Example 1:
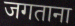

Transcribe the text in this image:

जगताना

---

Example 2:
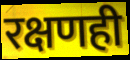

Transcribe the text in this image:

रक्षणही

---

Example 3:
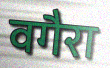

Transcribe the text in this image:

वगैरा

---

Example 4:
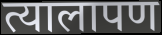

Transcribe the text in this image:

त्यालापण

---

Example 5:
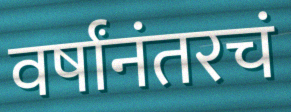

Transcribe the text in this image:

वर्षांनंतरचं